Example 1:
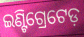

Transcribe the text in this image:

ଇଣ୍ଟିଗ୍ରେଟେଡ଼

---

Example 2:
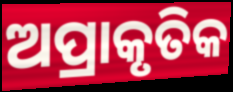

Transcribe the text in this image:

ଅପ୍ରାକୃତିକ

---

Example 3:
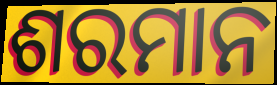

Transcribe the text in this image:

ଶରମାନ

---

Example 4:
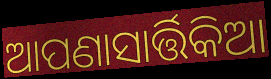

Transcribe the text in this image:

ଆପଣାସାର୍ତ୍ତିକିଆ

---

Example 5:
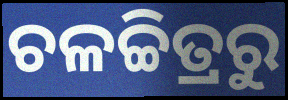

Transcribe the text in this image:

ଚଳଚ୍ଚିତ୍ରରୁ